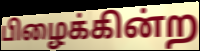
பிழைக்கின்ற